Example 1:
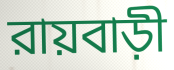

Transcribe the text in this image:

রায়বাড়ী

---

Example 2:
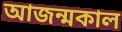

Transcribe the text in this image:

আজন্মকাল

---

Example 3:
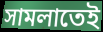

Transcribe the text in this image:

সামলাতেই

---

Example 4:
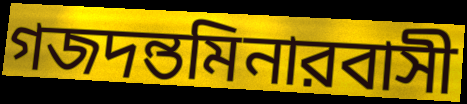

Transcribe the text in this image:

গজদন্তমিনারবাসী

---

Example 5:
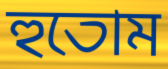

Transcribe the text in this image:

হুতোম